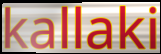
kallaki